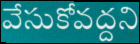
వేసుకోవద్దని